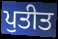
ਪੁਤੀਤ